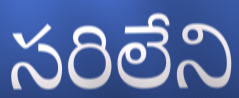
సరిలేని